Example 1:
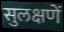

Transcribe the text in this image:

सुलक्षणें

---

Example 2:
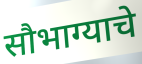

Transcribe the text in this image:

सौभाग्याचे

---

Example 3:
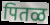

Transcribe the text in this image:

पितळ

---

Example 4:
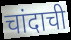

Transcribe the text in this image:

चांदाची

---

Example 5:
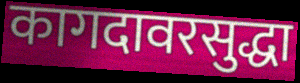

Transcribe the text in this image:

कागदावरसुद्धा